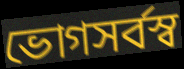
ভোগসর্বস্ব